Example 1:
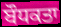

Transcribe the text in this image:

ਬੌਧਕਤਾ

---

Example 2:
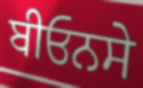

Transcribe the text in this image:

ਬੀਓਨਸੇ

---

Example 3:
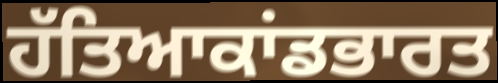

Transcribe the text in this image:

ਹੱਤਿਆਕਾਂਡਭਾਰਤ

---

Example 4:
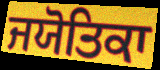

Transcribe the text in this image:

ਜਯੋਤਿਕਾ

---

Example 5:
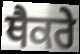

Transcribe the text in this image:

ਥੈਕਰੇ